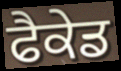
ਫੈਕੇਡ